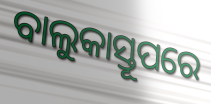
ବାଲୁକାସ୍ତୂପରେ